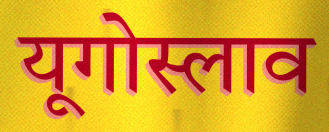
यूगोस्लाव